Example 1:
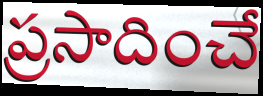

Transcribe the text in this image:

ప్రసాదించే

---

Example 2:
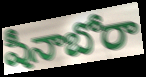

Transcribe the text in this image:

షీనాబోరా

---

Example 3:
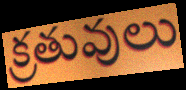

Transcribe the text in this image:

క్రతువులు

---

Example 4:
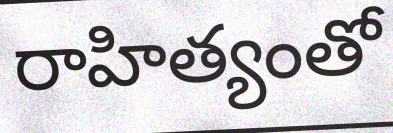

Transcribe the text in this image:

రాహిత్యంతో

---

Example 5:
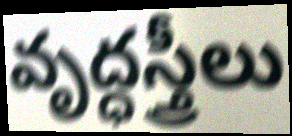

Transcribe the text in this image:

వృద్ధస్త్రీలు